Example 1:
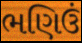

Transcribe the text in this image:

ભણિઉં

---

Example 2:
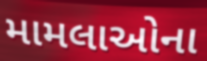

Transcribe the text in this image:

મામલાઓના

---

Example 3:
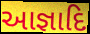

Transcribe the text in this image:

આજ્ઞાદિ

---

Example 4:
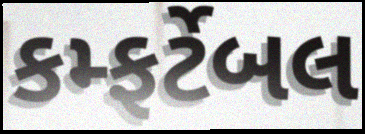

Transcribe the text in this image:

કમ્ફર્ટેબલ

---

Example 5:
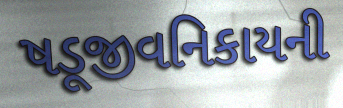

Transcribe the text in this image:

ષડૂજીવનિકાયની